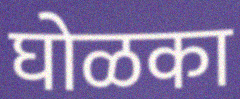
घोळका